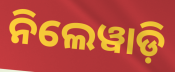
ନିଲେୱାଡ଼ି